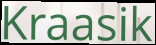
Kraasik